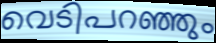
വെടിപറഞ്ഞും